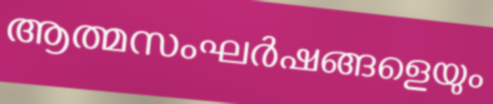
ആത്മസംഘർഷങ്ങളെയും